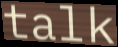
talk